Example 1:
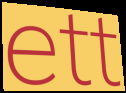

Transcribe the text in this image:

ett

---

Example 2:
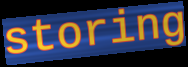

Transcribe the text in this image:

storing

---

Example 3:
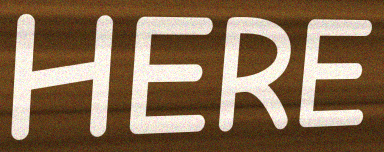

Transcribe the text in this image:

HERE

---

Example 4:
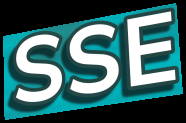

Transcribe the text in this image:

SSE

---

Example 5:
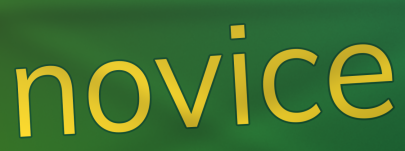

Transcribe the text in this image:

novice